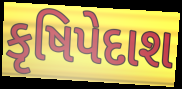
કૃષિપેદાશ